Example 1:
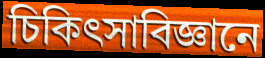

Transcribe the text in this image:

চিকিৎসাবিজ্ঞানে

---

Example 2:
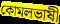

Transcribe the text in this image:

কোমলভাষী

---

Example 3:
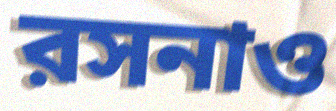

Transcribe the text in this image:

রসনাও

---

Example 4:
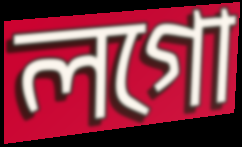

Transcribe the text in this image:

লগো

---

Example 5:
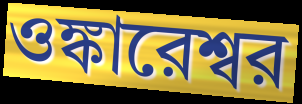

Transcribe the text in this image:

ওঙ্কারেশ্বর